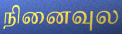
நினைவுல